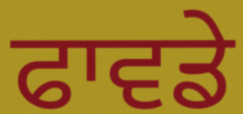
ਫਾਵਡੇ